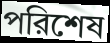
পরিশেষ